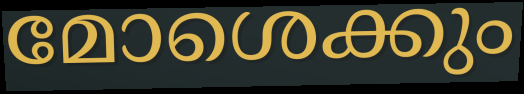
മോശെക്കും